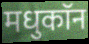
मधुकॉन